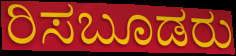
ರಿಸಬೂಡರು